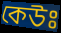
কেউঃ